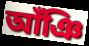
আঁঞি